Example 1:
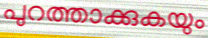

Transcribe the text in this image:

പുറത്താക്കുകയും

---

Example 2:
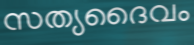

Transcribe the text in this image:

സത്യദൈവം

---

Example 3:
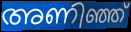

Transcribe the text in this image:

അണിഞ്ഞ്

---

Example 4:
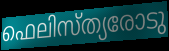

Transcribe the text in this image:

ഫെലിസ്ത്യരോടു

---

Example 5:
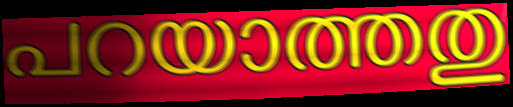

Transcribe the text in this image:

പറയാത്തതു